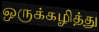
ஒருக்கழித்து